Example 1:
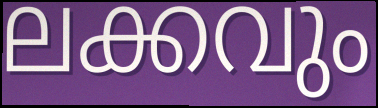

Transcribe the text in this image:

ലക്കവും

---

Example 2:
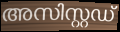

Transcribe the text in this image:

അസിസ്റ്റഡ്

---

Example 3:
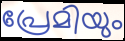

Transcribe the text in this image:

പ്രേമിയും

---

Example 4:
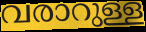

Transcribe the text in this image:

വരാറുള്ള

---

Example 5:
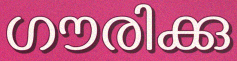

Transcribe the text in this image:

ഗൗരിക്കു